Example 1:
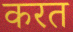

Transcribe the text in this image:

करत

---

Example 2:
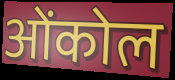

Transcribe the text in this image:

ओंकोल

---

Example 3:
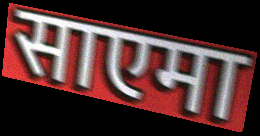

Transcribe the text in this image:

साएमा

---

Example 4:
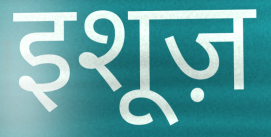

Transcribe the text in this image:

इशूज़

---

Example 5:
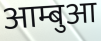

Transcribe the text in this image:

आम्बुआ